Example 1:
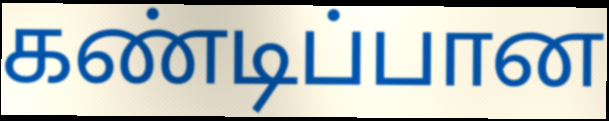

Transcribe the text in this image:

கண்டிப்பான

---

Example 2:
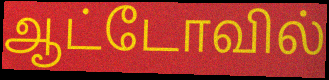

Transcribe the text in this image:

ஆட்டோவில்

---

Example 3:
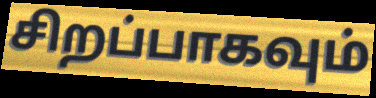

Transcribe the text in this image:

சிறப்பாகவும்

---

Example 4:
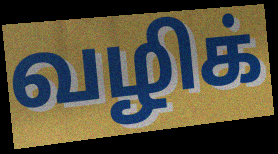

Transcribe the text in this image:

வழிக்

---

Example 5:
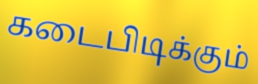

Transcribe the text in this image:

கடைபிடிக்கும்